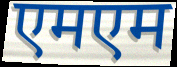
एमएम